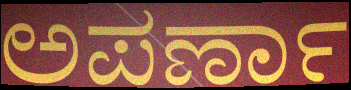
ಅಪರ್ಣಾ